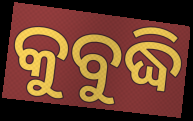
କୁବୁଦ୍ଧି